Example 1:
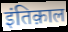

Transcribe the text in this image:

इंतिक़ाल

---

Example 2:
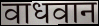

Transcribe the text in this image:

वाधवान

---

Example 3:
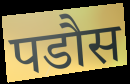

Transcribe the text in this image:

पडौस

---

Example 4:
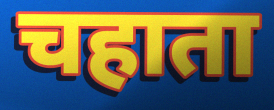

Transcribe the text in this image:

चहाता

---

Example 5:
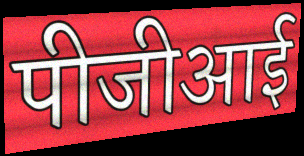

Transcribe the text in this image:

पीजीआई